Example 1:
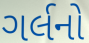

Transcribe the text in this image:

ગર્લનો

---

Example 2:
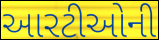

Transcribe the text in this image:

આરટીઓની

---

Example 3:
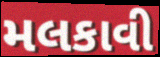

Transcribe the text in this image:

મલકાવી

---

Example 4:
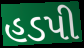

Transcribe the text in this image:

હડપી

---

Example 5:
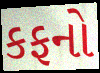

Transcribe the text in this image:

કફનો